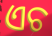
ଏଚ